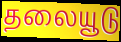
தலையூடு